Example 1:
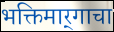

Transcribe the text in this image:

भक्तिमार्गाचा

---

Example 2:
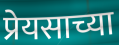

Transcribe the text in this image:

प्रेयसाच्या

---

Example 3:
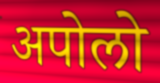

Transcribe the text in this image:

अपोलो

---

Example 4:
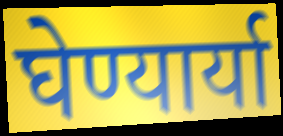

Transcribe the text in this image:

घेण्यार्या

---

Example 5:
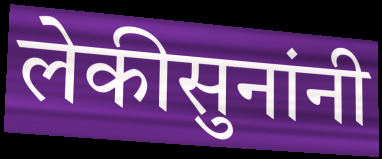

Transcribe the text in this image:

लेकीसुनांनी